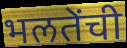
भलतेंची